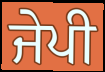
ਜੇਪੀ